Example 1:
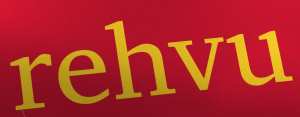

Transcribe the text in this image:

rehvu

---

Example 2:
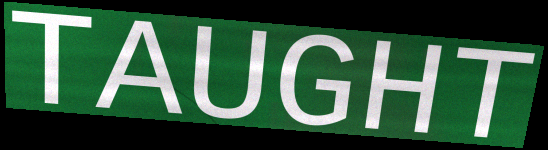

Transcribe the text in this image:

TAUGHT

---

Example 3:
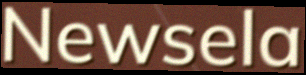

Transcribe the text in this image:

Newsela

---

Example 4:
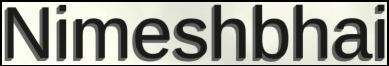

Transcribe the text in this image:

Nimeshbhai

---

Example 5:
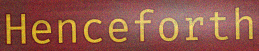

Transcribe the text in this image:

Henceforth